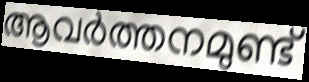
ആവർത്തനമുണ്ട്